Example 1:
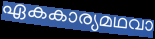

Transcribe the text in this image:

ഏകകാര്യമഥവാ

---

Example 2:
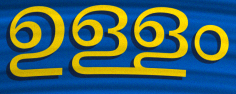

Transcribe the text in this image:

ഉള്ളം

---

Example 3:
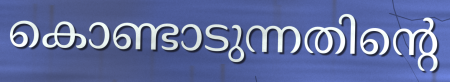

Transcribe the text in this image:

കൊണ്ടാടുന്നതിന്റെ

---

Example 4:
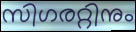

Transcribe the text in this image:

സിഗരറ്റിനും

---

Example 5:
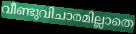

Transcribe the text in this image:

വീണ്ടുവിചാരമില്ലാതെ